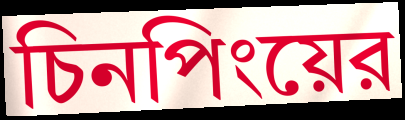
চিনপিংয়ের